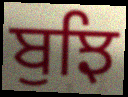
ਬੁਝਿ